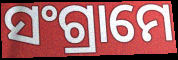
ସଂଗ୍ରାମେ